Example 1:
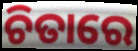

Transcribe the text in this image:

ଚିତାରେ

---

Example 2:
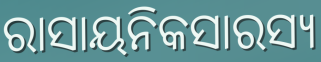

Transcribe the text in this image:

ରାସାୟନିକସାରସ୍ୟ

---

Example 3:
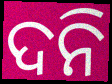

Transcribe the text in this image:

ଦନି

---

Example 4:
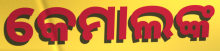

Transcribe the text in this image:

କେମାଲଙ୍କ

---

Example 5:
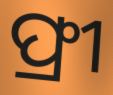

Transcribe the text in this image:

ଫ୍ରୀ